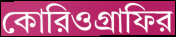
কোরিওগ্রাফির